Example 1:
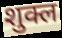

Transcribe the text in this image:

शुक्ल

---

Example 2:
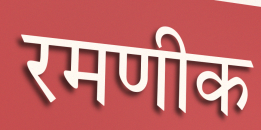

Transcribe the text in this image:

रमणीक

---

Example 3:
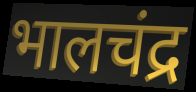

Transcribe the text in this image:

भालचंद्र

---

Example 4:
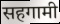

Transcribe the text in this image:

सहगामी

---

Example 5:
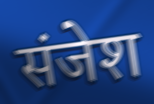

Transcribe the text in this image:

संजेश